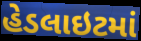
હેડલાઇટમાં